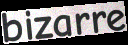
bizarre